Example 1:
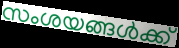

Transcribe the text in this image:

സംശയങ്ങൾക്ക്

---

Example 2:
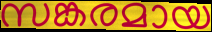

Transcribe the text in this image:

സങ്കരമായ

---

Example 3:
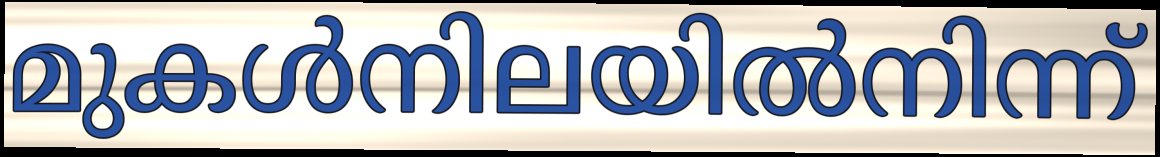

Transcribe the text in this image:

മുകൾനിലയിൽനിന്ന്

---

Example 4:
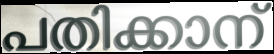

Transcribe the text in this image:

പതിക്കാന്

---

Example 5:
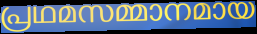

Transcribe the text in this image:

പ്രഥമസമ്മാനമായ